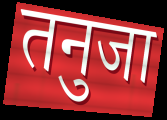
तनुजा